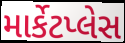
માર્કેટપ્લેસ